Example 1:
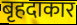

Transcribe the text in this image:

बृहदाकार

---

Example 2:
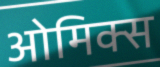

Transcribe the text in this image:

ओमिक्स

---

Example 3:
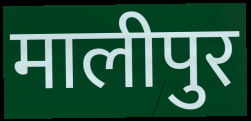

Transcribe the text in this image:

मालीपुर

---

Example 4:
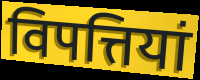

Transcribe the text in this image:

विपत्तियां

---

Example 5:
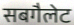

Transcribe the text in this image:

सबगैलेट